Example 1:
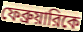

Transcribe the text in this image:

ফেব্রুয়ারিকে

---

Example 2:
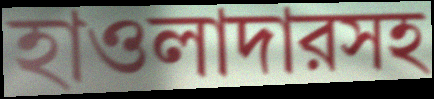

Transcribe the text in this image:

হাওলাদারসহ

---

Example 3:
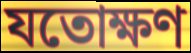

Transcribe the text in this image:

যতোক্ষণ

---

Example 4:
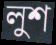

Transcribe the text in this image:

লুশ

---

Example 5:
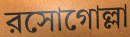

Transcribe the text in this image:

রসোগোল্লা